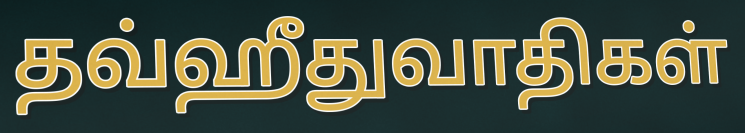
தவ்ஹீதுவாதிகள்